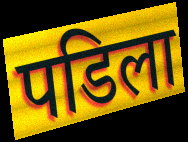
पडिला